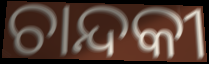
ଚାନ୍ଦକୀ